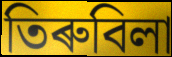
তিৰুবিলা